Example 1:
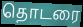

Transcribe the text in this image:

தொடரை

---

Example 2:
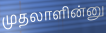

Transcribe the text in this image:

முதலாளின்னு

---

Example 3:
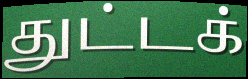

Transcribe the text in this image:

துட்டக்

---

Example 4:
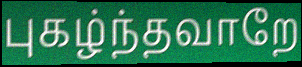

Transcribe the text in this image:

புகழ்ந்தவாறே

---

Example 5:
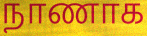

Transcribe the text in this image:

நாணாக